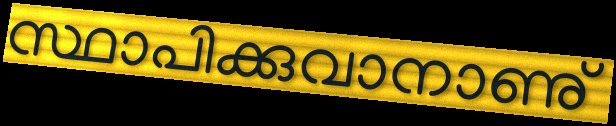
സ്ഥാപിക്കുവാനാണു്